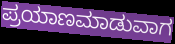
ಪ್ರಯಾಣಮಾಡುವಾಗ